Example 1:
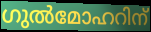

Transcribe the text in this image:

ഗുൽമോഹറിന്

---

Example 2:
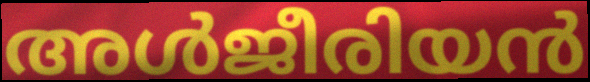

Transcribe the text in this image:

അൾജീരിയൻ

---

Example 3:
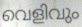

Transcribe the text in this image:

വെളിവും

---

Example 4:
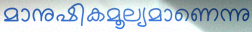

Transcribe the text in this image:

മാനുഷികമൂല്യമാണെന്നു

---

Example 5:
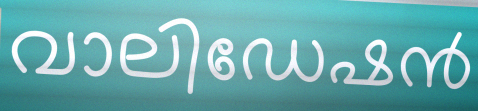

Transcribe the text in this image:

വാലിഡേഷൻ